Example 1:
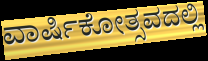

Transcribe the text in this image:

ವಾರ್ಷಿಕೋತ್ಸವದಲ್ಲಿ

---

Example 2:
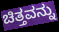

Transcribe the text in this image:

ಚಿತ್ತವನ್ನು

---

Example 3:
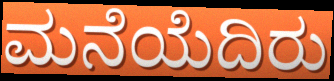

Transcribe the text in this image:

ಮನೆಯೆದಿರು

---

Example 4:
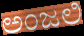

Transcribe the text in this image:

ಅಂಜಲಿ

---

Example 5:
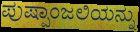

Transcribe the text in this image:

ಪುಷ್ಪಾಂಜಲಿಯನ್ನು